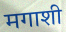
मगाशी